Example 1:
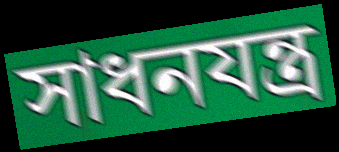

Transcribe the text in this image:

সাধনযন্ত্র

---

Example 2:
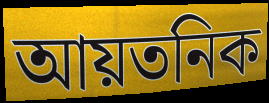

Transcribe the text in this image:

আয়তনিক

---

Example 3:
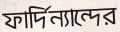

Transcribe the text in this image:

ফার্দিন্যান্দের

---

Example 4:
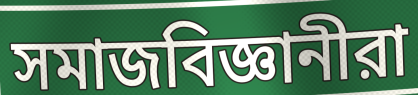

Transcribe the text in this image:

সমাজবিজ্ঞানীরা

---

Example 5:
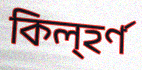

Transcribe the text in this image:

কিল্‌হর্ণ